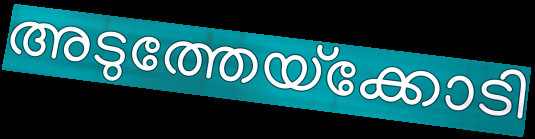
അടുത്തേയ്‌ക്കോടി